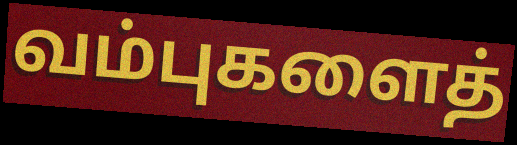
வம்புகளைத்